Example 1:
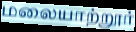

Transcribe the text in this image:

மலையாற்றூர்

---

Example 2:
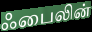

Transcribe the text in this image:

ஃபைலின்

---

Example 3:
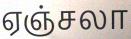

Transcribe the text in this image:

ஏஞ்சலா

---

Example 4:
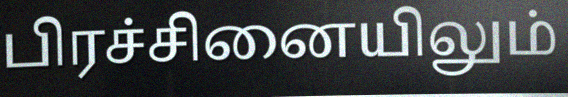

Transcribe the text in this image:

பிரச்சினையிலும்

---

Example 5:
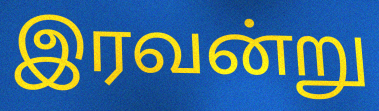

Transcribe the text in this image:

இரவன்று